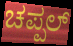
ಚಪ್ಪಲ್